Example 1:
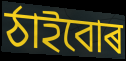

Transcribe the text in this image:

ঠাইবোৰ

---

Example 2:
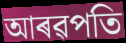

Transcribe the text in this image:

আৰৱপতি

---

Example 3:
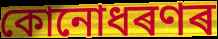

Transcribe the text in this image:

কোনোধৰণৰ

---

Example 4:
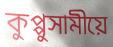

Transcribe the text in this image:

কুপ্পুসামীয়ে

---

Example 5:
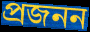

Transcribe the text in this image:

প্ৰজনন